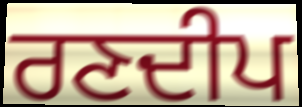
ਰਣਦੀਪ